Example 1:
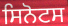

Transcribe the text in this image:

ਸਿਨੋਟਸ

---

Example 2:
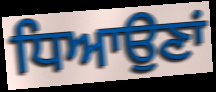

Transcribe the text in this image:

ਧਿਆਉਣਾਂ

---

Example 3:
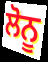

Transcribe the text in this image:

ਲੋਨੂ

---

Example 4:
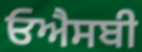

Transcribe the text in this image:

ਓਐਸਬੀ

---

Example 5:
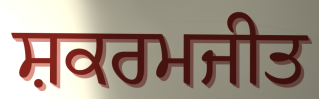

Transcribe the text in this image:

ਸ਼ਕਰਮਜੀਤ